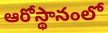
ఆరోస్థానంలో